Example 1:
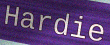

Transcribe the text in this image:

Hardie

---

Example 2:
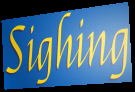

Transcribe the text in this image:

Sighing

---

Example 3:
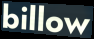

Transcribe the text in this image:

billow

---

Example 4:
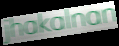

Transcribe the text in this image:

jhakalnan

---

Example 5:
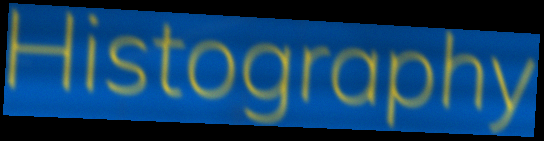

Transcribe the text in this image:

Histography